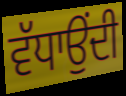
ਵੱਧਾਉਂਦੀ